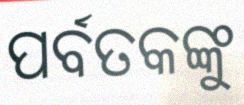
ପର୍ବତକଙ୍କୁ